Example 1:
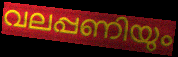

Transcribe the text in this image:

വലപ്പണിയും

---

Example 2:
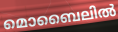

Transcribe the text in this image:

മൊബൈലിൽ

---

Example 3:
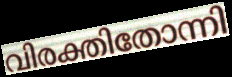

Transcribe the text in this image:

വിരക്തിതോന്നി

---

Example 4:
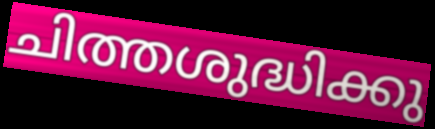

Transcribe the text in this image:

ചിത്തശുദ്ധിക്കു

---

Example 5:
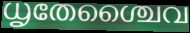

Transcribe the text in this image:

ധൃതേശ്ചൈവ